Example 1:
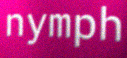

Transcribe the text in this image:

nymph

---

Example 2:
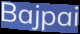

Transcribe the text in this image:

Bajpai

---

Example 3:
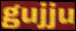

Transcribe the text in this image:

gujju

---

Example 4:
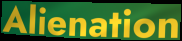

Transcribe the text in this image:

Alienation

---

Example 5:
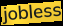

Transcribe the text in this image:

jobless